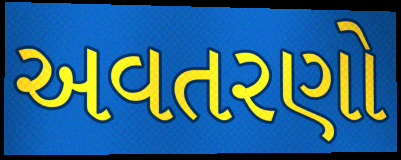
અવતરણો